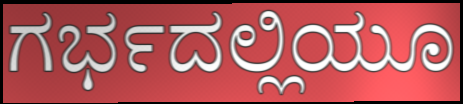
ಗರ್ಭದಲ್ಲಿಯೂ